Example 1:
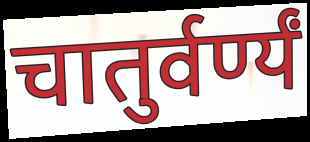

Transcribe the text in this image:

चातुर्वर्ण्यं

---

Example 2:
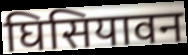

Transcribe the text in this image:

घिसियावन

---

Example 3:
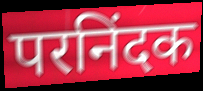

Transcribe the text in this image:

परनिंदक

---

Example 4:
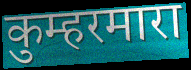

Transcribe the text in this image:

कुम्हरमारा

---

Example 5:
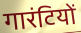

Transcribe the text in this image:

गारंटियों